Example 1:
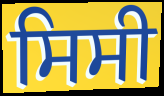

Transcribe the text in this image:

ਸਿਸੀ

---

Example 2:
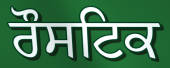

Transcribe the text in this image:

ਰੌਸਟਿਕ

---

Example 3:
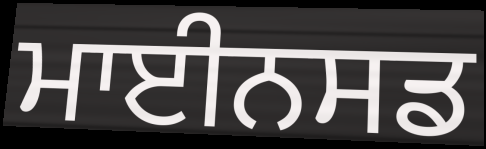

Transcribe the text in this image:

ਮਾਈਨਸਡ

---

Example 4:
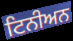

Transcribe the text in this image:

ਟਿਨੀਅਨ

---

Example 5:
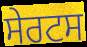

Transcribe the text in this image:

ਸੇਰਟਸ